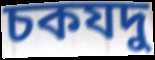
চকযদু